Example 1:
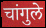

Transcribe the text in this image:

चांगुले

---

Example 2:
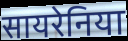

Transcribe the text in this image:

सायरेनिया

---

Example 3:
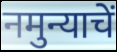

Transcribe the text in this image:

नमुन्याचें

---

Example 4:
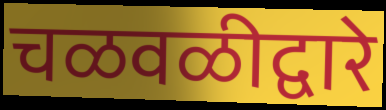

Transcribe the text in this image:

चळवळीद्वारे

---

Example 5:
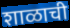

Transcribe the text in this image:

शाळाची